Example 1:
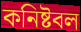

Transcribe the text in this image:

কনিষ্টবল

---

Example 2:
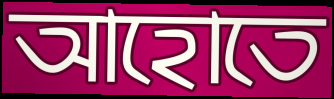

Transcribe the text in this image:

আহোতে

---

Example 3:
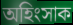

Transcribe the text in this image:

অহিংসাক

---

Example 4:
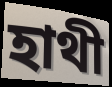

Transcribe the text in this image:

হাথী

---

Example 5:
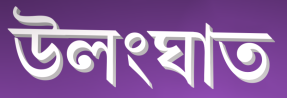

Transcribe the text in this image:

উলংঘাত